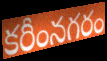
కరీంనగరం